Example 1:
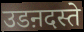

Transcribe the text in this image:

उडऩदस्ते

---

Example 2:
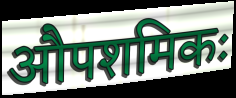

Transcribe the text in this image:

औपशमिकः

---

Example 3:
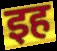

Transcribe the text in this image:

इह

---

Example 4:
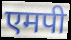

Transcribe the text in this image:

एमपी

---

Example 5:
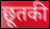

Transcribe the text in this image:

छूतकी